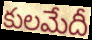
కులమేదీ